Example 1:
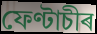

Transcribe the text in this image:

ফেণ্টাচীৰ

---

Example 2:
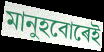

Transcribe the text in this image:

মানুহবোৰেই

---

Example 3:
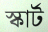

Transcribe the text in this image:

স্কাৰ্ট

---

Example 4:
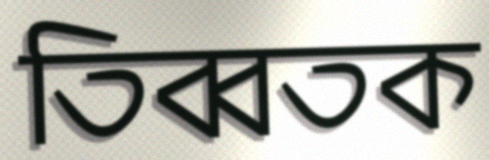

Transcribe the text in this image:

তিব্বতক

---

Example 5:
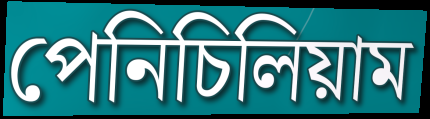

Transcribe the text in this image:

পেনিচিলিয়াম